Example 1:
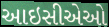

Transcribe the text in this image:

આઇસીએઓ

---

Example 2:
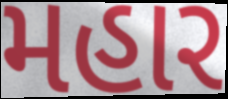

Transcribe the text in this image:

મહાર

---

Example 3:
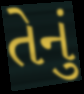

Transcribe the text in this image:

તેનું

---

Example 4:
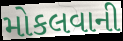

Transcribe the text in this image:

મોકલવાની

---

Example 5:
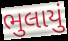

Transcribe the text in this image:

ભુલાયું